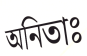
অনিতাঃ